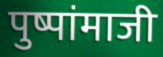
पुष्पांमाजी